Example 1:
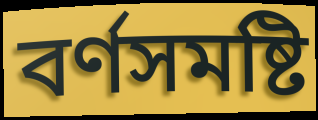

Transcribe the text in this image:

বর্ণসমষ্টি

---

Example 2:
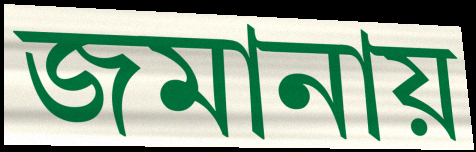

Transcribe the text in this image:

জমানায়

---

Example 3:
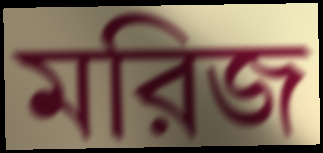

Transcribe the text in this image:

মরিজ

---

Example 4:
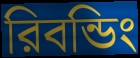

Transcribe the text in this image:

রিবন্ডিং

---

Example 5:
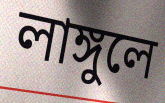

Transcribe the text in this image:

লাঙ্গুলে